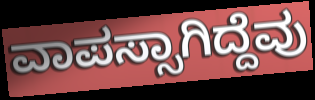
ವಾಪಸ್ಸಾಗಿದ್ದೆವು